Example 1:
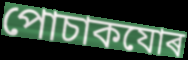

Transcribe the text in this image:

পোচাকযোৰ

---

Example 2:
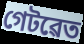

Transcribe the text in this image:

গেটৱেত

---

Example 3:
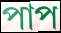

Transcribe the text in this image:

পাপ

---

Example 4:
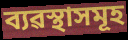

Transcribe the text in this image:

ব্যৱস্থাসমূহ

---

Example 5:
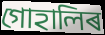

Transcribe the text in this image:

গোহালিৰ